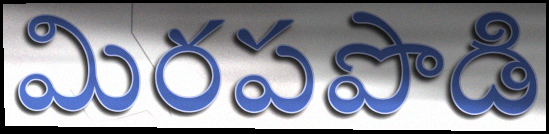
మిరపపొడి